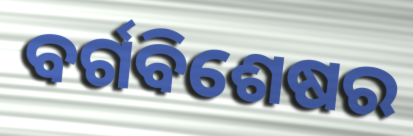
ବର୍ଗବିଶେଷର